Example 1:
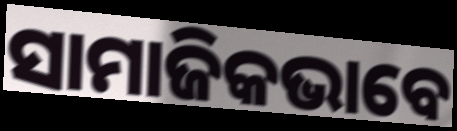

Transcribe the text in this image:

ସାମାଜିକଭାବେ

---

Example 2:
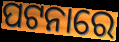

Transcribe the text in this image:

ପଟନାରେ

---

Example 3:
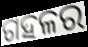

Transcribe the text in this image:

ଗହଳର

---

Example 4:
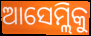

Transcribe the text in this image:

ଆସେମ୍ଲିକୁ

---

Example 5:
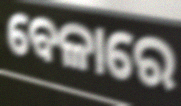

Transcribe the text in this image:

ବେଳାରେ